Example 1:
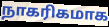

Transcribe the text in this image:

நாகரிகமாக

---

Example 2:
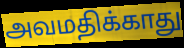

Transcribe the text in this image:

அவமதிக்காது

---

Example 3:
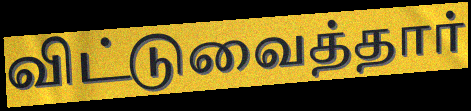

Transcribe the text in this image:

விட்டுவைத்தார்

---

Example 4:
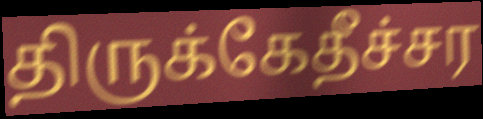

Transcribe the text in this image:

திருக்கேதீச்சர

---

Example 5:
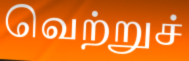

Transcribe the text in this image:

வெற்றுச்